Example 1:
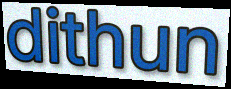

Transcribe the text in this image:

dithun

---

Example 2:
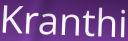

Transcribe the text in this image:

Kranthi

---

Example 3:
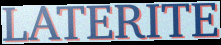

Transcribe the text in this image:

LATERITE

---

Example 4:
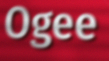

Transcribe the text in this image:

Ogee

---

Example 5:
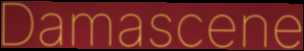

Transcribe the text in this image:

Damascene